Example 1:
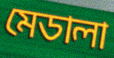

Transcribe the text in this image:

মেডালা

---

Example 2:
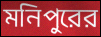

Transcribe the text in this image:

মনিপুরের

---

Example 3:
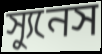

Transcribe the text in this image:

স্যুনেস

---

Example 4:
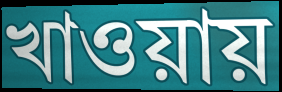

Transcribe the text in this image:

খাওয়ায়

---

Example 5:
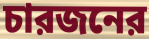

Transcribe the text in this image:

চারজনের